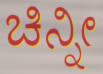
ಚಿನ್ನೀ